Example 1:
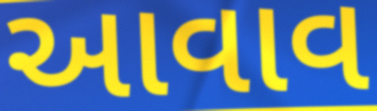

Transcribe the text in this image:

આવાવ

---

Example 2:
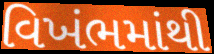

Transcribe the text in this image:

વિખંભમાંથી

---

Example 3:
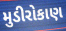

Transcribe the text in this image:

મુડીરોકાણ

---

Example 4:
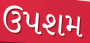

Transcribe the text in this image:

ઉપશમ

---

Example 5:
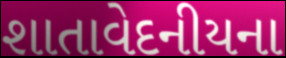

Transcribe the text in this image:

શાતાવેદનીયના